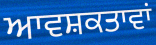
ਆਵਸ਼ਕਤਾਵਾਂ